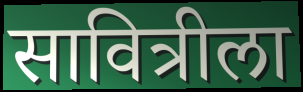
सावित्रीला